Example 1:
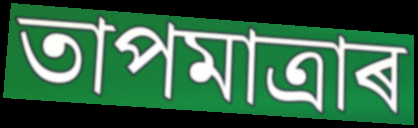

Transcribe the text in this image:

তাপমাত্ৰাৰ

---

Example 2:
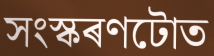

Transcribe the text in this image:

সংস্কৰণটোত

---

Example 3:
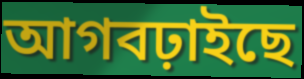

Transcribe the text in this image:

আগবঢ়াইছে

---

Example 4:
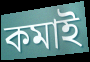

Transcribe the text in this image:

কমাই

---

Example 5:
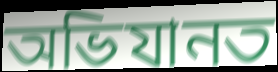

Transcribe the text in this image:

অভিযানত